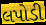
લપોડી